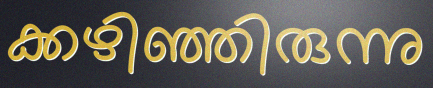
ക്കഴിഞ്ഞിരുന്നു